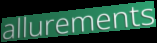
allurements